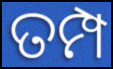
ତମ୍ପ